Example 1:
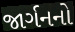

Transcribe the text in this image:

જાર્ગનનો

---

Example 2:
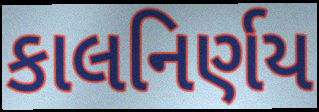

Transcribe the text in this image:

કાલનિર્ણય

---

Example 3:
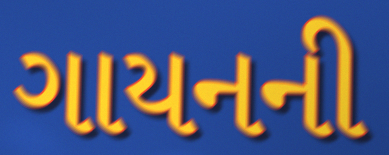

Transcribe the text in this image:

ગાયનની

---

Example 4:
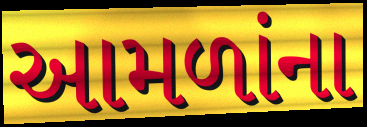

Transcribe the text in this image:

આમળાંના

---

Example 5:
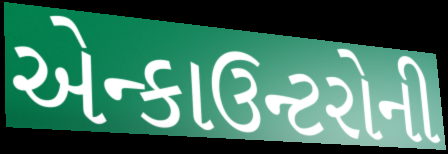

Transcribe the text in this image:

એન્કાઉન્ટરોની